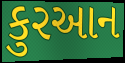
કુરઆન